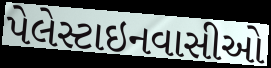
પેલેસ્ટાઇનવાસીઓ